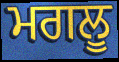
ਮਗਲੂ